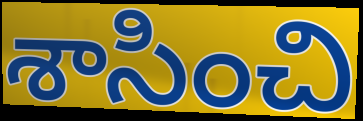
శాసించి